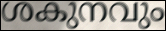
ശകുനവും